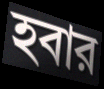
হবার